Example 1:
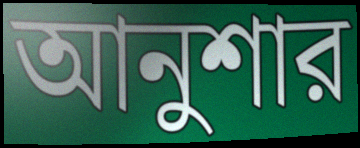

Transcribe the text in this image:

আনুশার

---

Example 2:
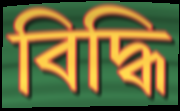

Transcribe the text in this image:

বিদ্ধি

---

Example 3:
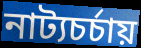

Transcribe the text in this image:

নাট্যচর্চায়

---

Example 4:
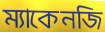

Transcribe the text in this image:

ম্যাকেনজি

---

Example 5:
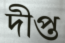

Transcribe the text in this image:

দীপ্ত